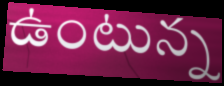
ఉంటున్న